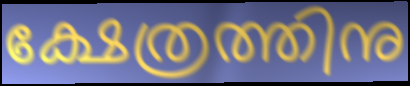
ക്ഷേത്രത്തിനു